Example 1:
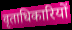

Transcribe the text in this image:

वृताधिकारियों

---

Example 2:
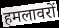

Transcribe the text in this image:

हमलावरों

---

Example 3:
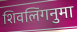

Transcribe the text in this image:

शिवलिंगनुमा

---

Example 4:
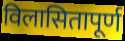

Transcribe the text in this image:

विलासितापूर्ण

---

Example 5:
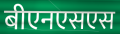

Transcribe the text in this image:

बीएनएसएस